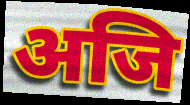
अजि